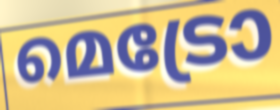
മെട്രോ